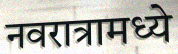
नवरात्रामध्ये